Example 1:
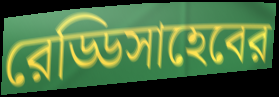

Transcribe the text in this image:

রেড্ডিসাহেবের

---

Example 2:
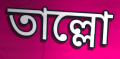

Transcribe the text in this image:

তাল্লো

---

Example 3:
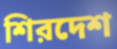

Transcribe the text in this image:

শিরদেশ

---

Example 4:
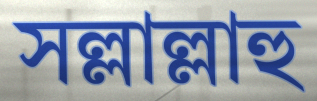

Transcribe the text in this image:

সল্লাল্লাহু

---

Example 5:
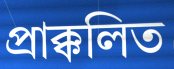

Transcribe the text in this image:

প্রাক্কলিত